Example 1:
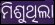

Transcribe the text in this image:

ମିଶୁଥିଲା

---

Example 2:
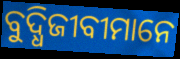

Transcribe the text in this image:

ବୁଦ୍ଧିଜୀବୀମାନେ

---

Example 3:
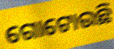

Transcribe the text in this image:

ଗୋଟୋଉଛି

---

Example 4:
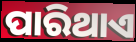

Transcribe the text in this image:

ପାରିଥାଏ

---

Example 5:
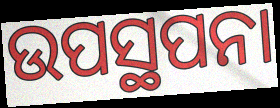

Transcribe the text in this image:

ଉପସ୍ଥପନା